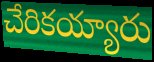
చేరికయ్యారు